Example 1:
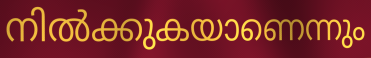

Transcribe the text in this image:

നിൽക്കുകയാണെന്നും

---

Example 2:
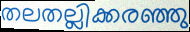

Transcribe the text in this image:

തലതല്ലിക്കരഞ്ഞു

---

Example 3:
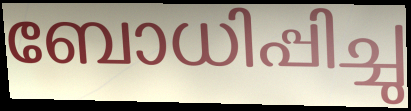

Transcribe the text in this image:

ബോധിപ്പിച്ചു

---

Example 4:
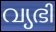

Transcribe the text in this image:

വ്യഭി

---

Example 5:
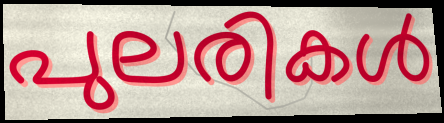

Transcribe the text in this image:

പുലരികൾ